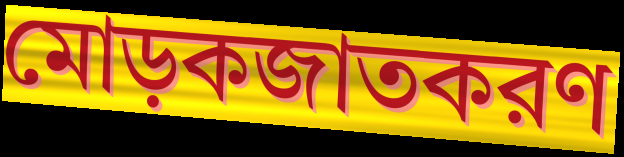
মোড়কজাতকরণ